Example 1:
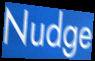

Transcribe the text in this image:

Nudge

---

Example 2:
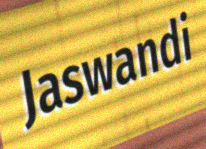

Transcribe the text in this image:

Jaswandi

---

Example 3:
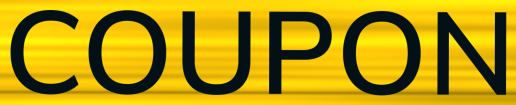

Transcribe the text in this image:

COUPON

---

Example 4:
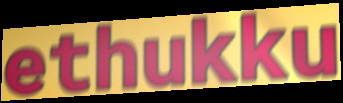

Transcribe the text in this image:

ethukku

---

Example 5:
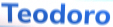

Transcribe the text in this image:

Teodoro